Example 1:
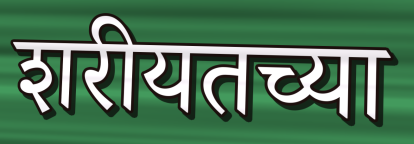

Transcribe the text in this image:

शरीयतच्या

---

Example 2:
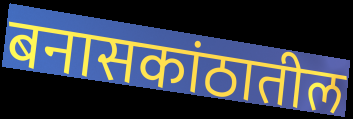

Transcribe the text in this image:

बनासकांठातील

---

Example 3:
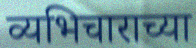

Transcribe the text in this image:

व्यभिचाराच्या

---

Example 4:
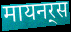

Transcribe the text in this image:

मायनर्स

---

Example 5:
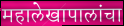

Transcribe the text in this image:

महालेखापालांचा